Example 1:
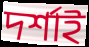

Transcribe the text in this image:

দৰ্শাই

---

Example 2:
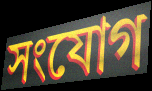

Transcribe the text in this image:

সংযোগ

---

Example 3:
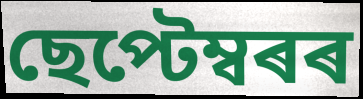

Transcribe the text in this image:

ছেপ্টেম্বৰৰ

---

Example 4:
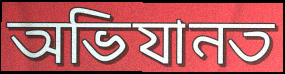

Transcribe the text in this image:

অভিযানত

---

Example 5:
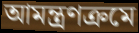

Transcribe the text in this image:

আমন্ত্ৰণক্ৰমে